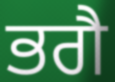
ਭਗੈ